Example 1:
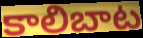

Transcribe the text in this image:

కాలిబాట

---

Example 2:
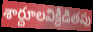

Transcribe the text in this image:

శార్దూలవిక్రీడితపు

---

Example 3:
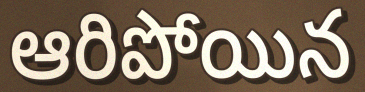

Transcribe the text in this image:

ఆరిపోయిన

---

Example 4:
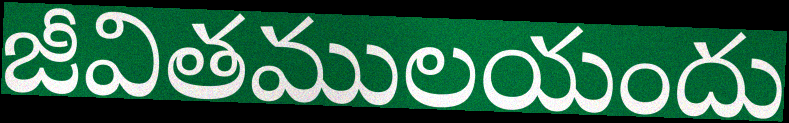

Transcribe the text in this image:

జీవితములయందు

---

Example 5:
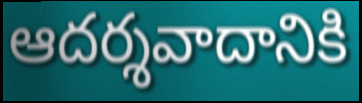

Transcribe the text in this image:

ఆదర్శవాదానికి